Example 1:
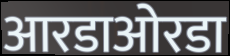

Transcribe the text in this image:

आरडाओरडा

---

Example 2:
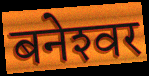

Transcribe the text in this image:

बनेश्वर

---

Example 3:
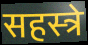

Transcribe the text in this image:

सहस्त्रे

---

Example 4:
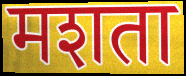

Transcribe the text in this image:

मशता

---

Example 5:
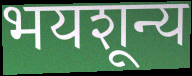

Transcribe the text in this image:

भयशून्य